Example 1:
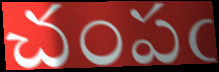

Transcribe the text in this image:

చంపఁ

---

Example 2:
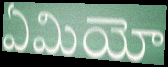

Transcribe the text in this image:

ఏమియో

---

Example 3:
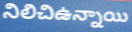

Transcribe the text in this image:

నిలిచిఉన్నాయి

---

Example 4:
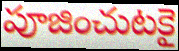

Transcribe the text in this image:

పూజించుటకై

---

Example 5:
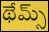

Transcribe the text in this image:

థేమ్స్